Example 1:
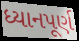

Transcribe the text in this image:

ધ્યાનપૂર્ણ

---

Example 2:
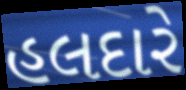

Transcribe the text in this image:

હલદારે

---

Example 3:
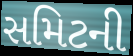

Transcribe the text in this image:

સમિટની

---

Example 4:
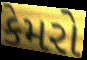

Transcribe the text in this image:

કેમરો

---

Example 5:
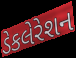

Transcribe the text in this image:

ડેકલેરેશન